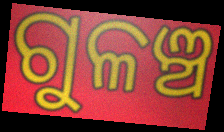
ଗୁଳଞ୍ଚ